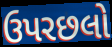
ઉપરછલો